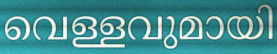
വെള്ളവുമായി